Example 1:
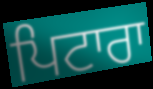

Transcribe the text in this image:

ਪਿਟਾਰਾ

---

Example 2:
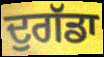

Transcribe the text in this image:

ਦੁਗੱਡਾ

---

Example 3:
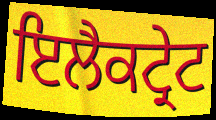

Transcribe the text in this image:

ਇਲੈਕਟ੍ਰੇਟ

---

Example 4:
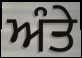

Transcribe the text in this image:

ਅੰਤੇ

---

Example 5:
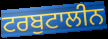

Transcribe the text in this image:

ਟਰਬੁਟਾਲੀਨ